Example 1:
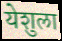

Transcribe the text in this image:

येशुला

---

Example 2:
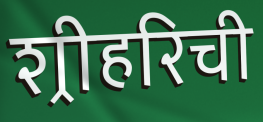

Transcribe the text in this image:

श्रीहरिची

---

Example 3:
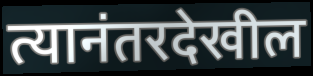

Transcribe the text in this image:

त्यानंतरदेखील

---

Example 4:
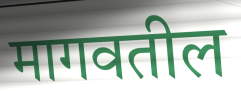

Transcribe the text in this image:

मागवतील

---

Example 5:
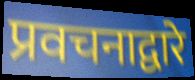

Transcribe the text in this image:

प्रवचनाद्वारे